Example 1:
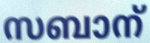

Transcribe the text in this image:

സബാന്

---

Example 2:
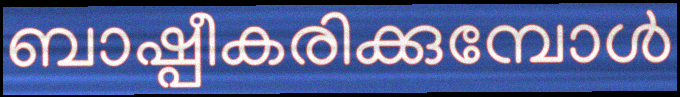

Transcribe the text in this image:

ബാഷ്പീകരിക്കുമ്പോൾ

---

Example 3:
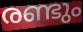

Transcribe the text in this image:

രണ്ടും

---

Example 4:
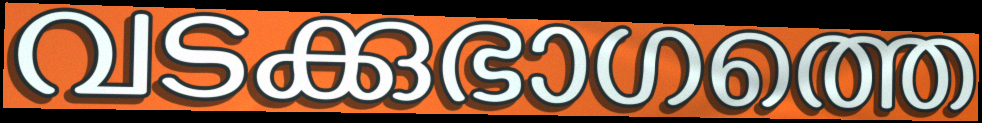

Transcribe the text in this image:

വടക്കുഭാഗത്തെ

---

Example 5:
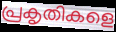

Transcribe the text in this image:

പ്രകൃതികളെ